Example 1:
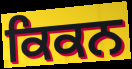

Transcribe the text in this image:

ਕਿਕਨ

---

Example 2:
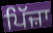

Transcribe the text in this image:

ਪਿੱਜ਼ਾ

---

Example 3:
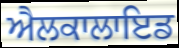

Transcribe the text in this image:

ਐਲਕਾਲਾਇਡ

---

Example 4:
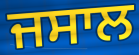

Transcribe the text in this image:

ਜਸਾਲ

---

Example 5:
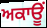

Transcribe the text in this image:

ਅਕਾਊਂ